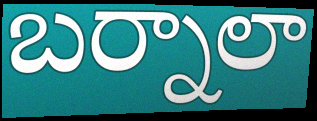
బర్నాలా